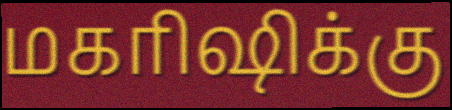
மகரிஷிக்கு